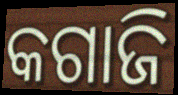
କଗାଜି